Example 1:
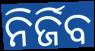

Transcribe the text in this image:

ନିର୍ଜିବ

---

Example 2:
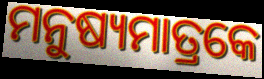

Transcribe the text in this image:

ମନୁଷ୍ୟମାତ୍ରକେ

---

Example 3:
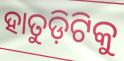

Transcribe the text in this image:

ହାତୁଡ଼ିଟିକୁ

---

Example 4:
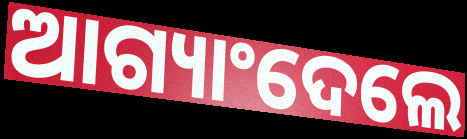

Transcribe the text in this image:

ଆଗ୍ୟାଂଦେଲେ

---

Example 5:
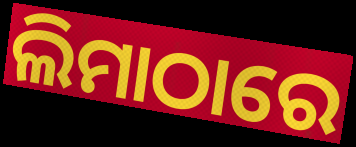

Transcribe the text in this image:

ଲିମାଠାରେ